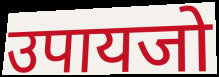
उपायजो